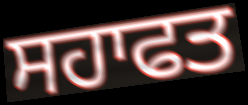
ਸਹਾਫਤ